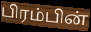
பிரம்பின்